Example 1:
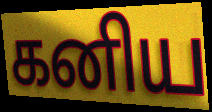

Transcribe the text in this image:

கனிய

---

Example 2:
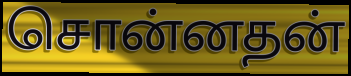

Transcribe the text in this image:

சொன்னதன்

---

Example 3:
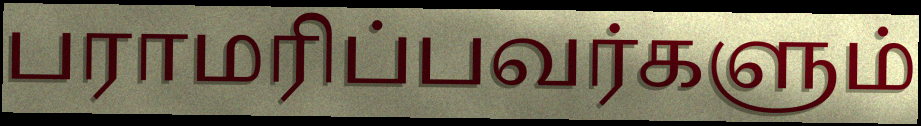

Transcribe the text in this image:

பராமரிப்பவர்களும்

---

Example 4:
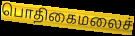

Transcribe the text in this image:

பொதிகைமலைச்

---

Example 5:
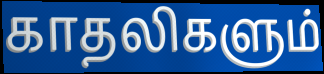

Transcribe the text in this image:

காதலிகளும்